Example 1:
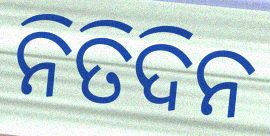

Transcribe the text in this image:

ନିତିଦିନ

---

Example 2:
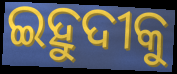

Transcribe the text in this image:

ଇହୁଦୀକୁ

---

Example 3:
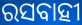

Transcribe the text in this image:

ରସବାହୀ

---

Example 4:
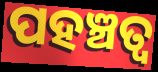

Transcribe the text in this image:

ପହଞ୍ଚତ୍ବ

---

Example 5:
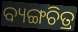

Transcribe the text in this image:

ବ୍ୟଙ୍ଗଚିତ୍ର